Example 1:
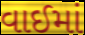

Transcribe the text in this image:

વાઈમાં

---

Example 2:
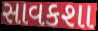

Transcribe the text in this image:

સાવકશા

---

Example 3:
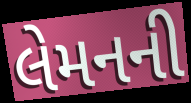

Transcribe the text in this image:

લેમનની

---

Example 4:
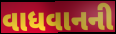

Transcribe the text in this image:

વાધવાનની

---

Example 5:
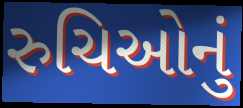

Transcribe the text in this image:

રુચિઓનું